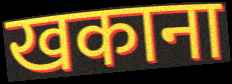
खकाना